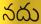
నదు